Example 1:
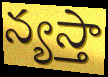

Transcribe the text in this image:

న్యస్తా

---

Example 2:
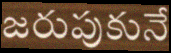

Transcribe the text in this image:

జరుపుకునే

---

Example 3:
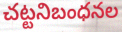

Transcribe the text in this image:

చట్టనిబంధనల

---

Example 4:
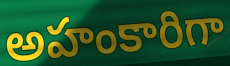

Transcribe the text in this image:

అహంకారిగా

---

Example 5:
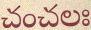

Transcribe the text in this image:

చంచలః